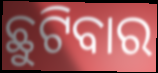
ଛୁଟିବାର